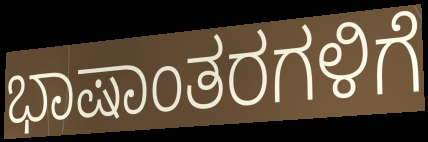
ಭಾಷಾಂತರಗಳಿಗೆ